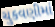
ચુકવણીમાં